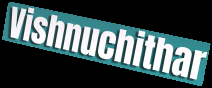
Vishnuchithar